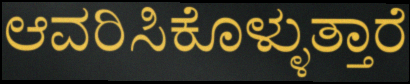
ಆವರಿಸಿಕೊಳ್ಳುತ್ತಾರೆ